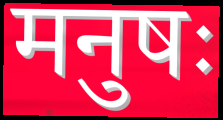
मनुषः